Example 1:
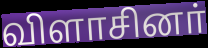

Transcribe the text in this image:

விளாசினர்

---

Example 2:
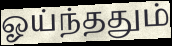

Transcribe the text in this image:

ஓய்ந்ததும்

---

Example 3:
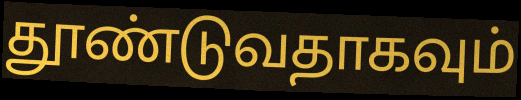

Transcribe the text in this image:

தூண்டுவதாகவும்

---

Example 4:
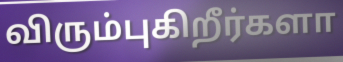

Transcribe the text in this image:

விரும்புகிறீர்களா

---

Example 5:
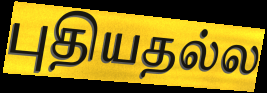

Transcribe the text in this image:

புதியதல்ல